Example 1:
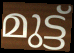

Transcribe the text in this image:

മുട്ട്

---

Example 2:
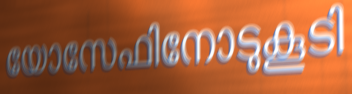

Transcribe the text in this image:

യോസേഫിനോടുകൂടി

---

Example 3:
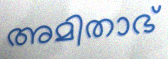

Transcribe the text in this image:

അമിതാഭ്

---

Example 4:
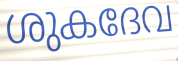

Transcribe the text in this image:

ശുകദേവ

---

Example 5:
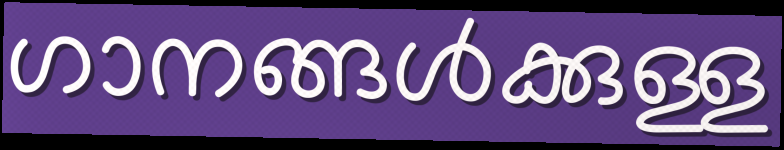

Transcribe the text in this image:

ഗാനങ്ങൾക്കുള്ള